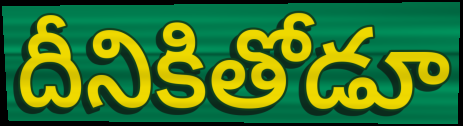
దీనికితోడూ